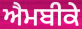
ਐਮਬੀਕੇ